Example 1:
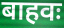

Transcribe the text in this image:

बाहवः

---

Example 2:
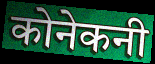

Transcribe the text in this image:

कोनेकनी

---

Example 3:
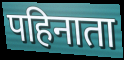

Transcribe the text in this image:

पहिनाता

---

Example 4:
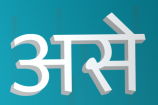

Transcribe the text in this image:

असे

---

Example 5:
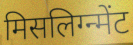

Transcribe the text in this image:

मिसलिग्न्मेंट